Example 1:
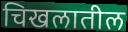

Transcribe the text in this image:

चिखलातील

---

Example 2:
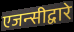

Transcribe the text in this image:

एजन्सीद्वारे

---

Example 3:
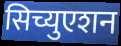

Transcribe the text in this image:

सिच्युएशन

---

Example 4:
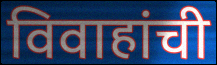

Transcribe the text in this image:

विवाहांची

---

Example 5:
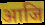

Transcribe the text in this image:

आजि